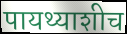
पायथ्याशीच